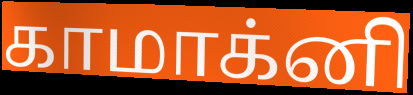
காமாக்னி